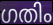
ഗതിം